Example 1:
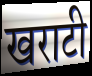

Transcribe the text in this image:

खराटी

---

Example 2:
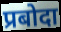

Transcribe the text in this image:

प्रबोदा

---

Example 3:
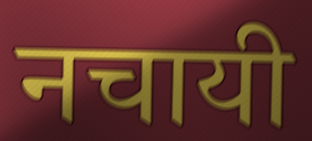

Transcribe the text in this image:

नचायी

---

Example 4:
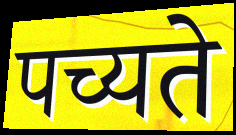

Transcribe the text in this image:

पच्यते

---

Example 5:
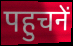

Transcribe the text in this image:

पहुचनें